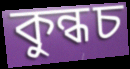
কুন্ধচ